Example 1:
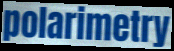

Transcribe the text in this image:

polarimetry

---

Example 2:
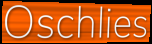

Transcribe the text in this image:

Oschlies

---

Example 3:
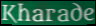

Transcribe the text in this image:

Kharade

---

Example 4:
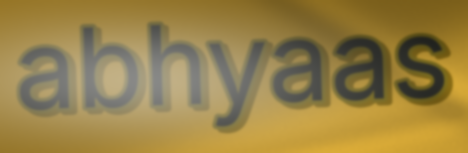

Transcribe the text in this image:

abhyaas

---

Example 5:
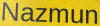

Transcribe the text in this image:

Nazmun